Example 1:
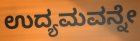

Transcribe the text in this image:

ಉದ್ಯಮವನ್ನೇ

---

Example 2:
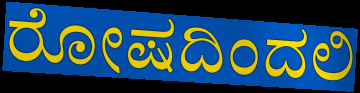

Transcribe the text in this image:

ರೋಷದಿಂದಲಿ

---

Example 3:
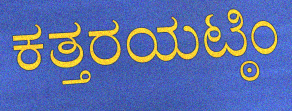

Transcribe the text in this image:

ಕತ್ತರಯಟ್ಠಿಂ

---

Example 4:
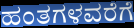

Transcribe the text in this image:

ಹಂತಗಳವರೆಗೆ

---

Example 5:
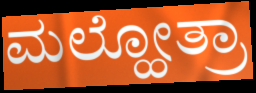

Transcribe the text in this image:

ಮಲ್ಹೋತ್ರಾ